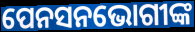
ପେନସନଭୋଗୀଙ୍କ